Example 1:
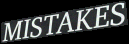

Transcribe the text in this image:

MISTAKES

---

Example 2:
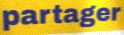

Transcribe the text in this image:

partager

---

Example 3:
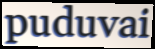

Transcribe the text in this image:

puduvai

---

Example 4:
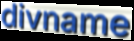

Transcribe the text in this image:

divname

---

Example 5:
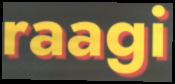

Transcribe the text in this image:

raagi